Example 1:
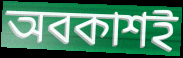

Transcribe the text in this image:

অবকাশই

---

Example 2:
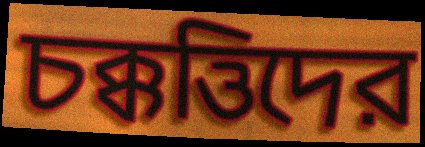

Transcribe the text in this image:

চক্কত্তিদের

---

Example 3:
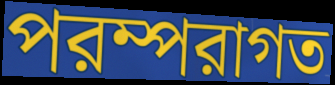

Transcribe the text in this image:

পরম্পরাগত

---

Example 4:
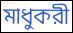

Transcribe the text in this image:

মাধুকরী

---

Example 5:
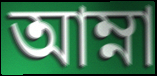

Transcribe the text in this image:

আম্না